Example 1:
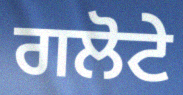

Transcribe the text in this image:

ਗਲੋਟੇ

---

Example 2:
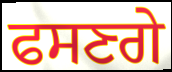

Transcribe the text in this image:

ਫਸਣਗੇ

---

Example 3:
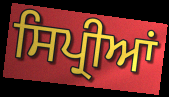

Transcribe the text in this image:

ਸਿਪ੍ਰੀਆਂ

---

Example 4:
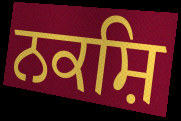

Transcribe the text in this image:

ਨਕਸ਼ਿ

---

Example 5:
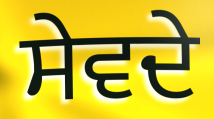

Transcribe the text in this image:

ਸੇਵਦੇ